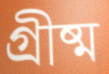
গ্রীষ্ম